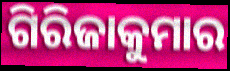
ଗିରିଜାକୁମାର